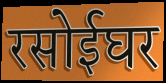
रसोईघर